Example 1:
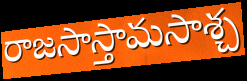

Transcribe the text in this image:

రాజసాస్తామసాశ్చ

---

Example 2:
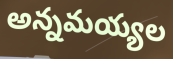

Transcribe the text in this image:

అన్నమయ్యల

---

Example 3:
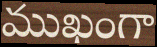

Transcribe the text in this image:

ముఖంగా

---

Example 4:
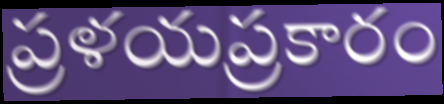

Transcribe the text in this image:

ప్రళయప్రకారం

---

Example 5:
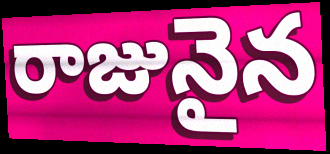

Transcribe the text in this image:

రాజునైన